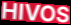
HIVOS